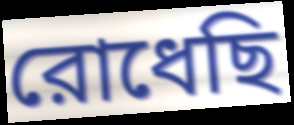
রোধেছি